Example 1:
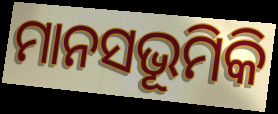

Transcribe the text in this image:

ମାନସଭୂମିକି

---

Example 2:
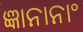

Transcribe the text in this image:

ଜ୍ଞାନାନାଂ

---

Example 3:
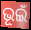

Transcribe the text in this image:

ଭୂଇଁ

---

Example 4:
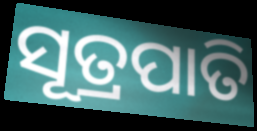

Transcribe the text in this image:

ସୂତ୍ରପାତି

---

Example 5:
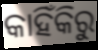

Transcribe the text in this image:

କାହିଁକିରୁ